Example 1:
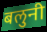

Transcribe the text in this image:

बलुनी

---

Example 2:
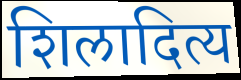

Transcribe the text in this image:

शिलादित्य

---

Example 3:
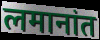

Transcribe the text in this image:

लमानांत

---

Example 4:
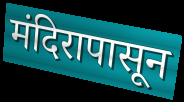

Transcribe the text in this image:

मंदिरापासून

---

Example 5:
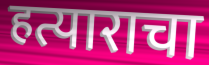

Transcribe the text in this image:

हत्याराचा